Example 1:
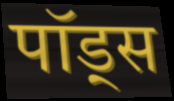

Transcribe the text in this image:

पॉड्स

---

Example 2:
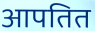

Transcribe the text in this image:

आपतित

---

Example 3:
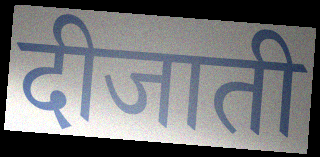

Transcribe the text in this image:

दीजाती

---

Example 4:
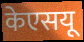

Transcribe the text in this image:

केएसयू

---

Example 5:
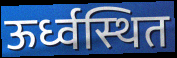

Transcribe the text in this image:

ऊर्ध्वस्थित